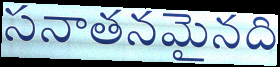
సనాతనమైనది